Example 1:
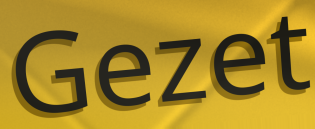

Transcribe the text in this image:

Gezet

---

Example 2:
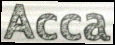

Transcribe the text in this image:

Acca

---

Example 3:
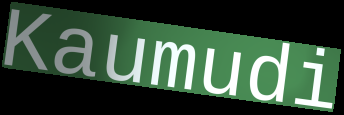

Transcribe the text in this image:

Kaumudi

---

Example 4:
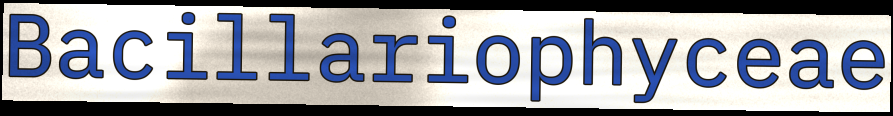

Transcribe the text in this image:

Bacillariophyceae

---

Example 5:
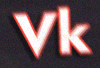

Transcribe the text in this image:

Vk